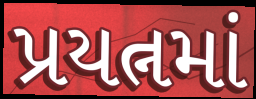
પ્રયત્નમાં